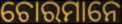
ଚୋରମାନେ